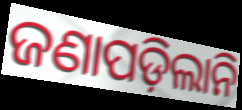
ଜଣାପଡ଼ିଲାନି